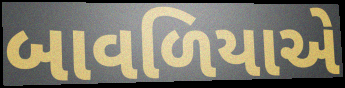
બાવળિયાએ